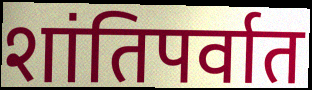
शांतिपर्वात